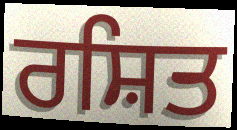
ਰਸ਼ਿਤ